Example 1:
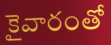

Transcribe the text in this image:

కైవారంతో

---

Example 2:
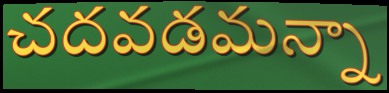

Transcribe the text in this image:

చదవడమన్నా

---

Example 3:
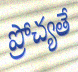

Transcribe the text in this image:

ప్రోచ్యతే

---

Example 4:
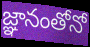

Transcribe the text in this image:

జ్ఞానంతోనో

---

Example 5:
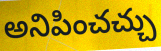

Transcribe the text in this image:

అనిపించచ్చు